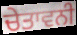
ਚੇਤਾਵਨੀ